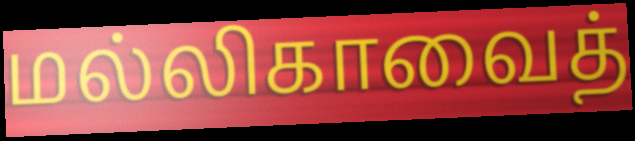
மல்லிகாவைத்